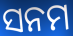
ସନମ